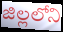
జిల్లలోని